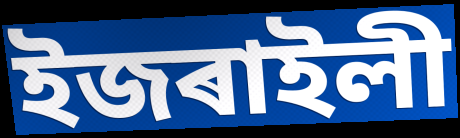
ইজৰাইলী